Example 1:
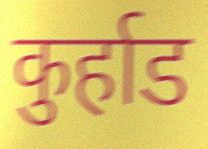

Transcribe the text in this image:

कुर्हाड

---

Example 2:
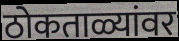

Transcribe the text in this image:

ठोकताळ्यांवर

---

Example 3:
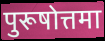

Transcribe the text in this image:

पुरूषोत्तमा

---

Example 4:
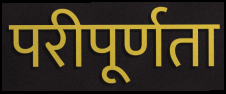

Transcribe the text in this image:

परीपूर्णता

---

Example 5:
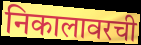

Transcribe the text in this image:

निकालावरची